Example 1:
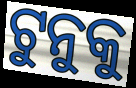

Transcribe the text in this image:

ଟୁନୁକୁ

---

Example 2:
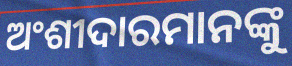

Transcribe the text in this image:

ଅଂଶୀଦାରମାନଙ୍କୁ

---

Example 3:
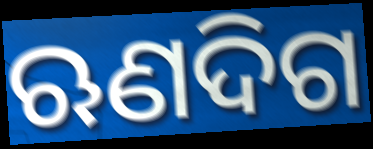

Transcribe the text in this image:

ଋଣଦିଗ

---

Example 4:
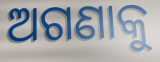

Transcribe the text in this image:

ଅଗଣାକୁ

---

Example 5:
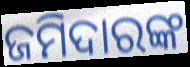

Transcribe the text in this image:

ଜମିଦାରଙ୍କ